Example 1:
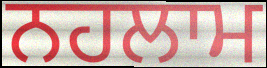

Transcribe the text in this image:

ਨਹਲਾਮ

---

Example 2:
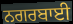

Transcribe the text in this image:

ਨਗਰਬਾਈ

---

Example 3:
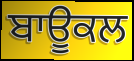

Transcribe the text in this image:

ਬਾਊਕਲ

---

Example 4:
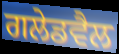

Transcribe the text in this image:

ਗਲੇਡਵੈਲ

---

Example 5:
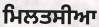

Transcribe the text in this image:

ਮਿਲਤਸੀਆ